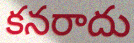
కనరాదు